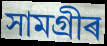
সামগ্ৰীৰ